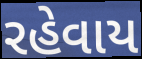
રહેવાય